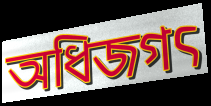
অধিজগৎ